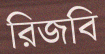
রিজবি